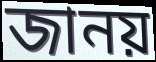
জানয়